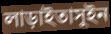
লাড়াইতাসুইন